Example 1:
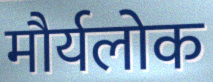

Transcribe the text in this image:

मौर्यलोक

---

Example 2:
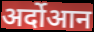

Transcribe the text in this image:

अर्दोआन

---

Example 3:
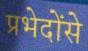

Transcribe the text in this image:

प्रभेदोंसे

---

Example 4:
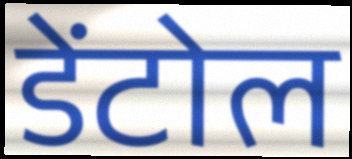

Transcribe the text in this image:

डेंटोल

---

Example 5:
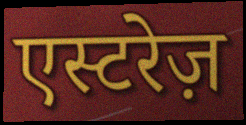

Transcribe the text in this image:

एस्टरेज़